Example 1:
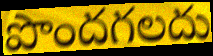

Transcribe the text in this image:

పొందగలదు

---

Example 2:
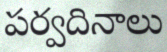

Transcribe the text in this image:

పర్వదినాలు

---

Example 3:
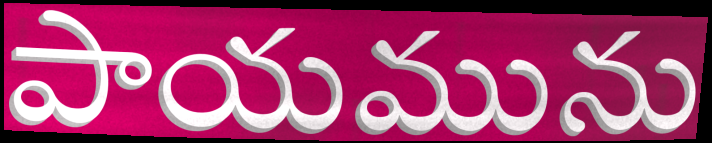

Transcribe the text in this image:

పాయమును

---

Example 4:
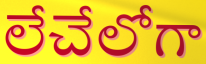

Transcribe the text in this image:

లేచేలోగా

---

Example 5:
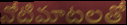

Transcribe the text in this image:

నోటిమాటలతో